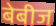
बेबीज